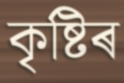
কৃষ্টিৰ